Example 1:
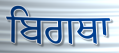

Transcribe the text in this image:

ਬਿਗਥਾ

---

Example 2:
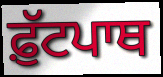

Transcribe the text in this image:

ਫ਼ੁੱਟਪਾਥ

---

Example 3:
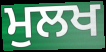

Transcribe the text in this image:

ਮੁਲਖ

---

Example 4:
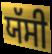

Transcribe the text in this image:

ਯੱਸੀ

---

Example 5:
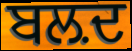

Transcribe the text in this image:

ਬਲ਼ਦ